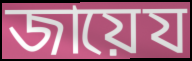
জায়েয